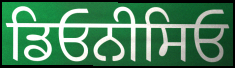
ਡਿਓਨੀਸਿਓ